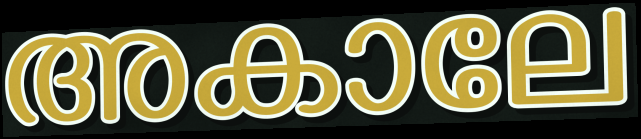
അകാലേ